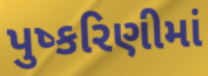
પુષ્કરિણીમાં